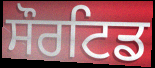
ਸੌਰਟਿਡ